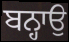
ਬਨ੍ਹਾਉ